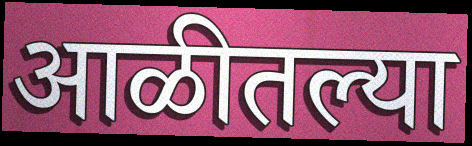
आळीतल्या